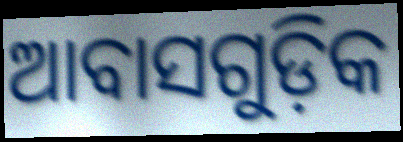
ଆବାସଗୁଡ଼ିକ